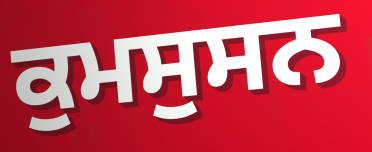
ਕੁਮਸੁਸਨ